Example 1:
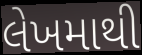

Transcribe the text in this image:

લેખમાથી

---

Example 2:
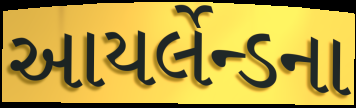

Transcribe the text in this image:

આયર્લેન્ડના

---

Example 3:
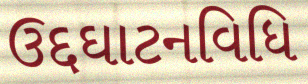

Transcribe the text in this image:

ઉદ્દઘાટનવિધિ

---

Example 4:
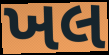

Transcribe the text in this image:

ખલ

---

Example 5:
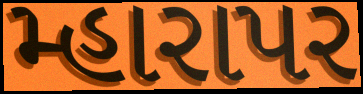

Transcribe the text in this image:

મ્હારાપર